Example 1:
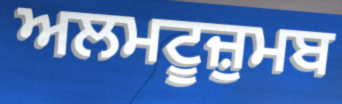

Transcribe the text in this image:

ਅਲਮਟੂਜ਼ੁਮਬ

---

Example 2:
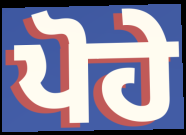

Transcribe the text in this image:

ਪੋਹੇ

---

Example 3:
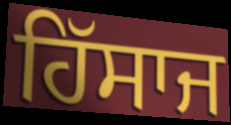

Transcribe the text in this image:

ਹਿੱਸਾਜ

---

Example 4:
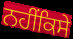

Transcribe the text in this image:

ਨਹੀਂਕਿਸੇ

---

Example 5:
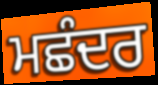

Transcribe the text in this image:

ਮਛੰਦਰ